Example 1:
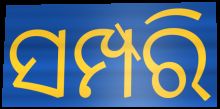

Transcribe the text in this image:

ସମ୍ପରି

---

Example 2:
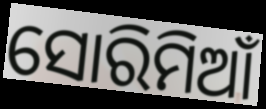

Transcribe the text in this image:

ସୋରିମିଆଁ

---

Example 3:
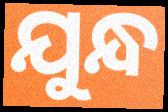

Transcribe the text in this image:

ଯୁନ୍ଧ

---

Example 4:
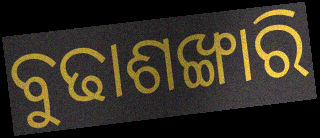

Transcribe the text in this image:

ବୁଢାଶଙ୍ଖାରି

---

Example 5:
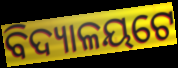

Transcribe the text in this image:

ବିଦ୍ୟାଳୟଟେ